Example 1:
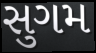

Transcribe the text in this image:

સુગમ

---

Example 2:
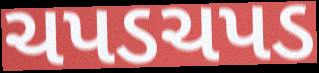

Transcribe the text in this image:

ચપડચપડ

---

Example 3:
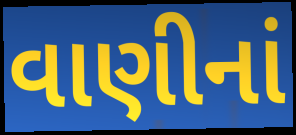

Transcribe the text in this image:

વાણીનાં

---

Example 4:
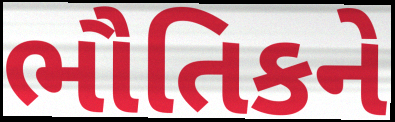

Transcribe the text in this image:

ભૌતિકને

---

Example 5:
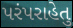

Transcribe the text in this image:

પરંપરાહેતુ